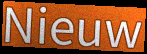
Nieuw